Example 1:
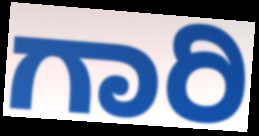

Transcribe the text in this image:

ಗಾರಿ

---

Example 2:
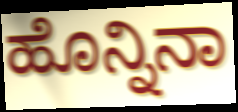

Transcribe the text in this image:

ಹೊನ್ನಿನಾ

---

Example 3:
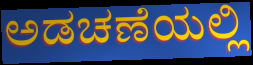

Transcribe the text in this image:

ಅಡಚಣೆಯಲ್ಲಿ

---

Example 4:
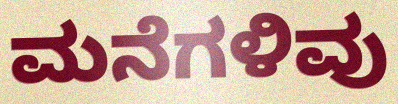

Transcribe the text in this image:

ಮನೆಗಳಿವು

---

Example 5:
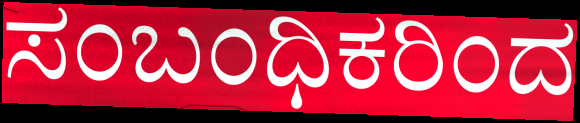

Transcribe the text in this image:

ಸಂಬಂಧಿಕರಿಂದ